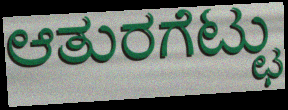
ಆತುರಗೆಟ್ಟು